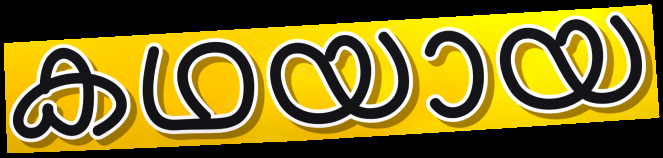
കഥയായ